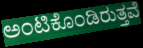
ಅಂಟಿಕೊಂಡಿರುತ್ತವೆ